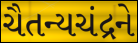
ચૈતન્યચંદ્રને